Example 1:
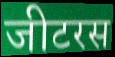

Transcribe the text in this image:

जीटरस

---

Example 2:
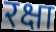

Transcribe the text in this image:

रक्षा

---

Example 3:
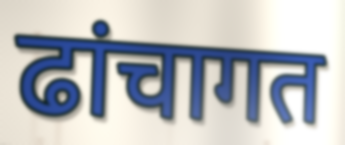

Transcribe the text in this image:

ढांचागत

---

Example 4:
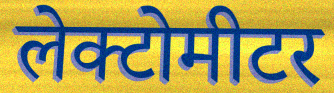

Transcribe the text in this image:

लेक्टोमीटर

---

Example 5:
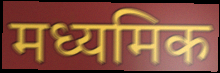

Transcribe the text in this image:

मध्यमिक